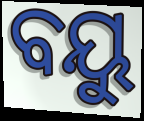
ବୟୁ